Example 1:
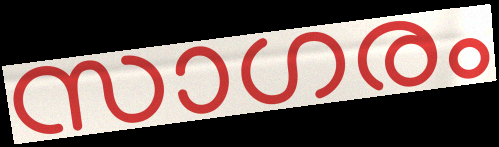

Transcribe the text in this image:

സാഗരം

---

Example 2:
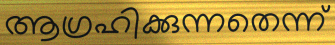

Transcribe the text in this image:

ആഗ്രഹിക്കുന്നതെന്ന്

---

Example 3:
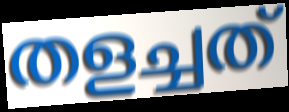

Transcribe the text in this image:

തളച്ചത്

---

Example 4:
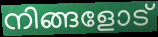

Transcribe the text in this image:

നിങ്ങളോട്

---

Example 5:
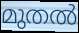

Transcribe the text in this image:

മുതൽ